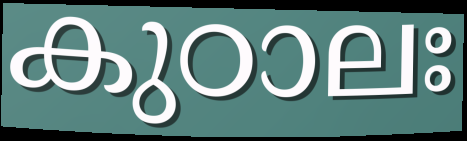
കുഠാലഃ